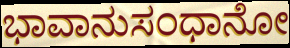
ಭಾವಾನುಸಂಧಾನೋ